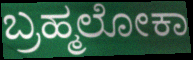
ಬ್ರಹ್ಮಲೋಕಾ